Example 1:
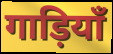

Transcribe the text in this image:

गाड़ियाँ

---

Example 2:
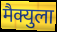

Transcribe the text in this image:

मैक्युला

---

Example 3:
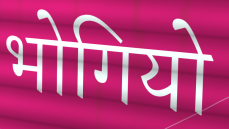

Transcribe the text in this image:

भोगियो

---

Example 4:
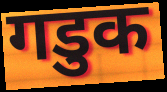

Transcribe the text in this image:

गडुक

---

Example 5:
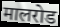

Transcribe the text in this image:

मालरोड